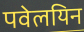
पवेलयिन